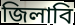
জিলাবি